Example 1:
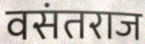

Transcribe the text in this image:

वसंतराज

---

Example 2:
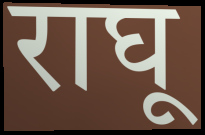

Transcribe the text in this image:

राघू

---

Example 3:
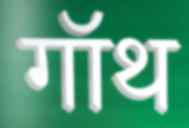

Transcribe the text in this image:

गॉथ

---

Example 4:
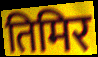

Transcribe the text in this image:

तिमिर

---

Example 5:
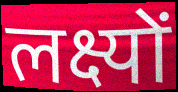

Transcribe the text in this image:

लक्ष्‍यों